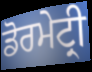
ਡੋਰਮੇਟ੍ਰੀ